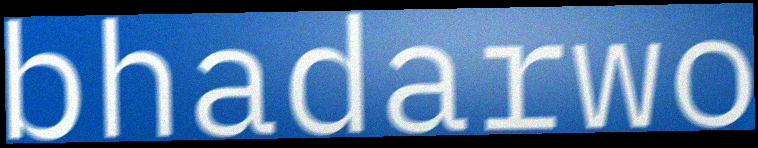
bhadarwo